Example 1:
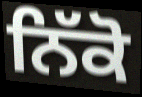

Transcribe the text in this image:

ਨਿੱਕੋ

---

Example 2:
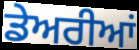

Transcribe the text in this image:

ਡੇਅਰੀਆਂ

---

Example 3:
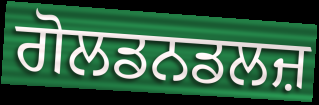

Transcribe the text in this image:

ਗੋਲਡਨਡਲਜ਼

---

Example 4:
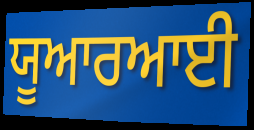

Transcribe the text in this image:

ਯੂਆਰਆਈ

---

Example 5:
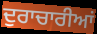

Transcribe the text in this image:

ਦੁਰਾਚਾਰੀਆਂ